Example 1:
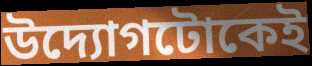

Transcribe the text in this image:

উদ্যোগটোকেই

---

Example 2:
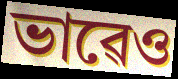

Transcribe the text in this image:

ভাৱেও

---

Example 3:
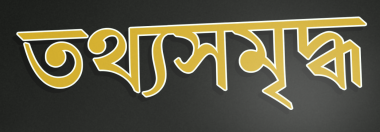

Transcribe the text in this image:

তথ্যসমৃদ্ধ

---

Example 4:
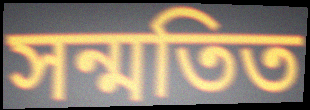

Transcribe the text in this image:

সন্মতিত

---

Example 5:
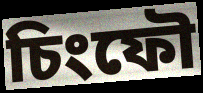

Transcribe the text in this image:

চিংফৌ